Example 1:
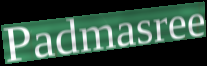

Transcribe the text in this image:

Padmasree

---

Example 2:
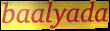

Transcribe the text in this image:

baalyada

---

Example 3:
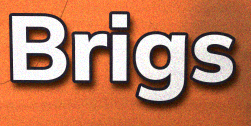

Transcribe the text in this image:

Brigs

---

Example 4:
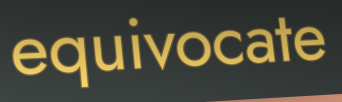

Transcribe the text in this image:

equivocate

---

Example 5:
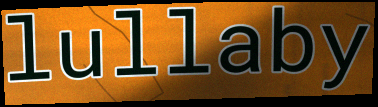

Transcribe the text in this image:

lullaby